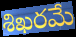
శిఖరమే